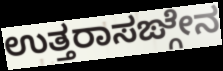
ಉತ್ತರಾಸಙ್ಗೇನ